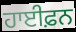
ਹਾਈਫ਼ਨ